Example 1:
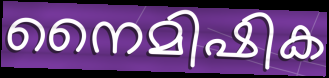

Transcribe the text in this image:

നൈമിഷിക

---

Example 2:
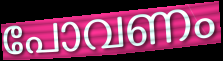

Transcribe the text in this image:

പോവണം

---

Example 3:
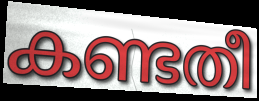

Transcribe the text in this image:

കണ്ടതീ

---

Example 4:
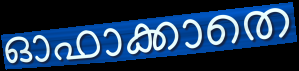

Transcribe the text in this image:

ഓഫാക്കാതെ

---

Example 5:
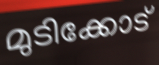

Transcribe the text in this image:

മുടിക്കോട്